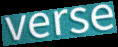
verse